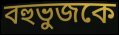
বহুভুজকে